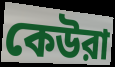
কেউরা